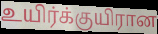
உயிர்க்குயிரான